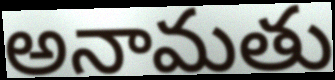
అనామతు